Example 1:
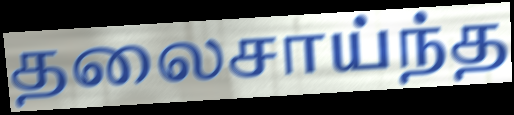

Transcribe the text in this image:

தலைசாய்ந்த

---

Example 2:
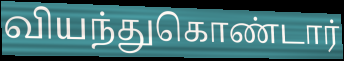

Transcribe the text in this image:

வியந்துகொண்டார்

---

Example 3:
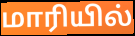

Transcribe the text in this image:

மாரியில்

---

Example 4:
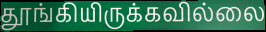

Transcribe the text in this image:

தூங்கியிருக்கவில்லை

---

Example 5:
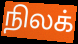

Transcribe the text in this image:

நிலக்